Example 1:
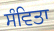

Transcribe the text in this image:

ਸੰਵਿਤਾ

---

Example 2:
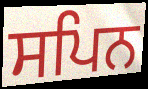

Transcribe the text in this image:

ਸਪਿਨ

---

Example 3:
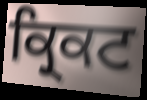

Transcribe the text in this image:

ਕ੍ਰਿਕਟ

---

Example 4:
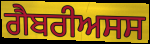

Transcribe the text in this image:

ਗੈਬਰੀਅਸਸ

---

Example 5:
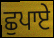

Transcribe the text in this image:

ਛੁਪਾਏ